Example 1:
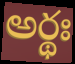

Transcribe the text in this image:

అర్థః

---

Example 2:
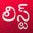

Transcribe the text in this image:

లిస్ట్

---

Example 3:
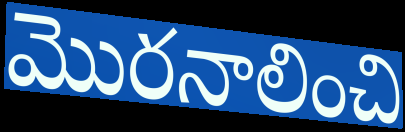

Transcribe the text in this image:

మొరనాలించి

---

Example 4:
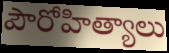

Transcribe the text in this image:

పౌరోహిత్యాలు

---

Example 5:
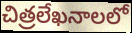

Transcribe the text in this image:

చిత్రలేఖనాలలో